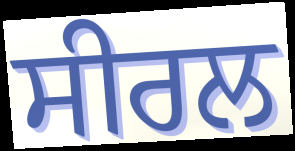
ਸੀਰਲ